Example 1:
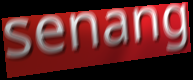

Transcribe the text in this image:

senang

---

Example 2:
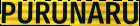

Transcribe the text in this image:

PURUNARU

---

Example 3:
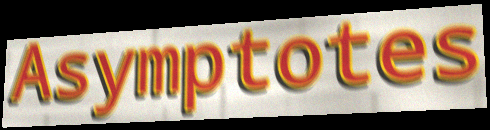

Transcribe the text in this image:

Asymptotes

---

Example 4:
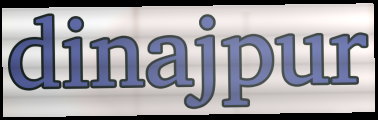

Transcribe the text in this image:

dinajpur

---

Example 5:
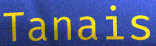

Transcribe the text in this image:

Tanais